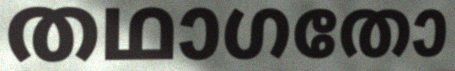
തഥാഗതോ